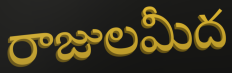
రాజులమీద